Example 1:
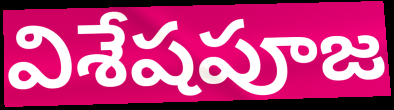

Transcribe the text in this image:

విశేషపూజ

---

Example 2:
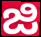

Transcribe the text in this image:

జి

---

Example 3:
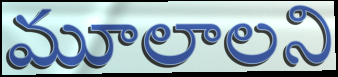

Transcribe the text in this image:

మూలాలని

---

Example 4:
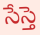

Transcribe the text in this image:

సేస్తె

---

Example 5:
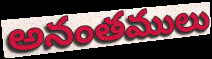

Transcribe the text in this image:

అనంతములు